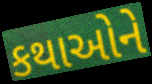
કથાઓને